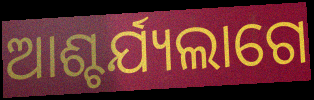
ଆଶ୍ଚର୍ଯ୍ୟଲାଗେ